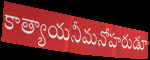
కాత్యాయనీమనోహరుడూ